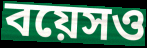
বয়েসও